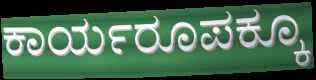
ಕಾರ್ಯರೂಪಕ್ಕೂ